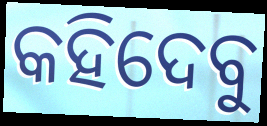
କହିଦେବୁ